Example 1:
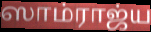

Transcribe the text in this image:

ஸாம்ராஜ்ய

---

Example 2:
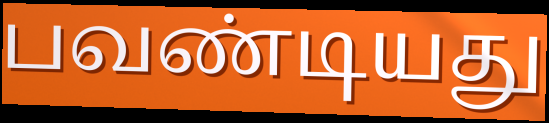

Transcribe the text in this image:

பவண்டியது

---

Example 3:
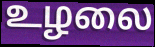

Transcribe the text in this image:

உழலை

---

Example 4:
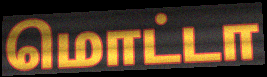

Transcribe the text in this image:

மொட்டா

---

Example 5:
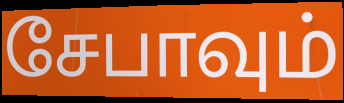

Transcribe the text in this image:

சேபாவும்